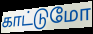
காட்டுமோ